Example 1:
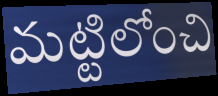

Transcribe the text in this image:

మట్టిలోంచి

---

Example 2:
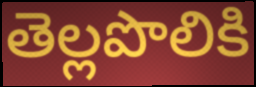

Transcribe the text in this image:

తెల్లపొలికి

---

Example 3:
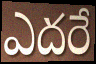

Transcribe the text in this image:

ఎదరే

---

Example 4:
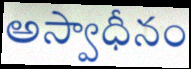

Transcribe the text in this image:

అస్వాధీనం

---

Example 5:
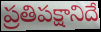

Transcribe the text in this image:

ప్రతిపక్షానిదే